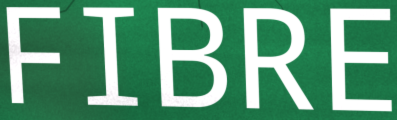
FIBRE